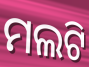
ମଲଟି